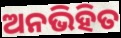
ଅନଭିହିତ